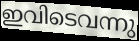
ഇവിടെവന്നു